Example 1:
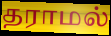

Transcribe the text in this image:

தராமல்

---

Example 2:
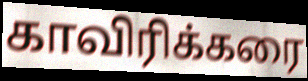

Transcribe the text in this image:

காவிரிக்கரை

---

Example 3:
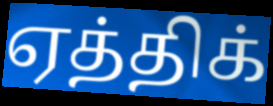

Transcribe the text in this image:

ஏத்திக்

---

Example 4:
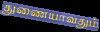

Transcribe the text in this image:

துணையாவதும்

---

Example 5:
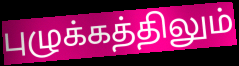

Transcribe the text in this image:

புழுக்கத்திலும்